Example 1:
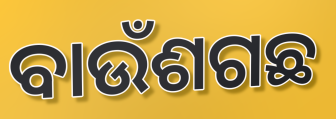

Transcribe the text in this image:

ବାଉଁଶଗଛ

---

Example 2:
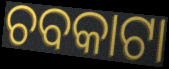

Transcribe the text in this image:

ଚବକାଟା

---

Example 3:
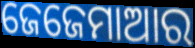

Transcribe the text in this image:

ଜେଜେମାଆର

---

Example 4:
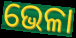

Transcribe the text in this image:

ଭେଳା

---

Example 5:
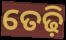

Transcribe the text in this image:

ତେଢ଼ି